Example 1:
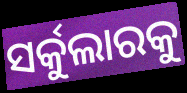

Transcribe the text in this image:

ସର୍କୁଲାରକୁ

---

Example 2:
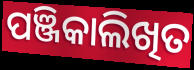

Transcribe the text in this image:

ପଞ୍ଜିକାଲିଖିତ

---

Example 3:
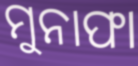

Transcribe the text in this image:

ମୁନାଫା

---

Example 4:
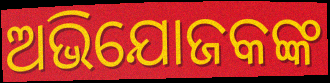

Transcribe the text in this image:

ଅଭିଯୋଜକଙ୍କ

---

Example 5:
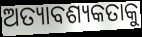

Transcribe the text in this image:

ଅତ୍ୟାବଶ୍ୟକତାକୁ